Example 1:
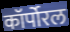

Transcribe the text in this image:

कॉर्पोरल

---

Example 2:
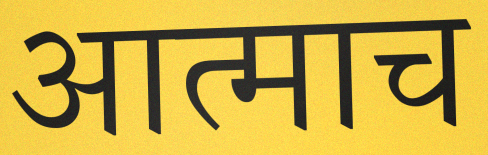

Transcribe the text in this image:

आत्माच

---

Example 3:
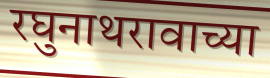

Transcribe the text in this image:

रघुनाथरावाच्या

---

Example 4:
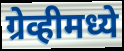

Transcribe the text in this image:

ग्रेव्हीमध्ये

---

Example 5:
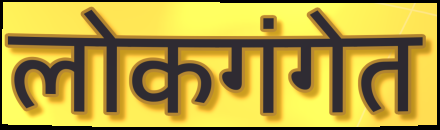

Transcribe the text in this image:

लोकगंगेत